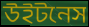
উইটনেস